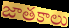
జాతకాలు